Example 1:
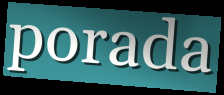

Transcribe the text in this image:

porada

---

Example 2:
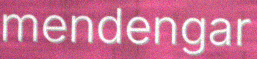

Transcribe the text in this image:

mendengar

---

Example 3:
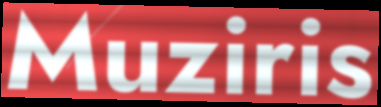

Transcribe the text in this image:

Muziris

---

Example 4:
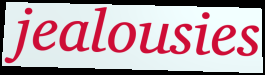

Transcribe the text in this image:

jealousies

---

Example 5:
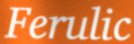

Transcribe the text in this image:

Ferulic